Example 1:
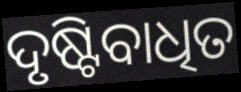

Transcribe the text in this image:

ଦୃଷ୍ଟିବାଧିତ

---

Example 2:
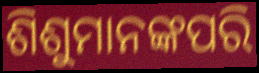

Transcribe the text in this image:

ଶିଶୁମାନଙ୍କପରି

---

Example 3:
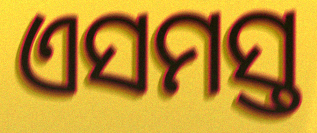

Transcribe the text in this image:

ଏସମସ୍ତ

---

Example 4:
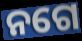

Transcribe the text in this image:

ନଗେ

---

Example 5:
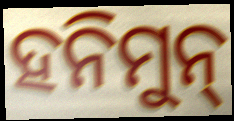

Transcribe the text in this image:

ହନିମୁନ୍